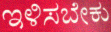
ಇಳಿಸಬೇಕು